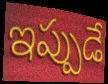
ఇప్పుడే